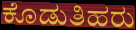
ಕೊಡುತಿಹರು